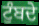
ਟੁੰਬਦੇ